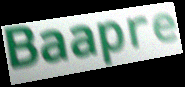
Baapre